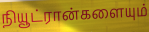
நியூட்ரான்களையும்